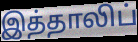
இத்தாலிப்